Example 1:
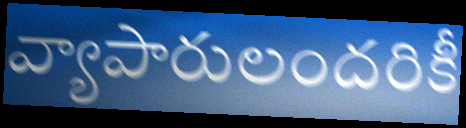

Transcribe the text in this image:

వ్యాపారులందరికీ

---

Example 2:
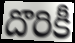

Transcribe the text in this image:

దొరికీ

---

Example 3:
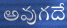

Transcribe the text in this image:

అవుగదే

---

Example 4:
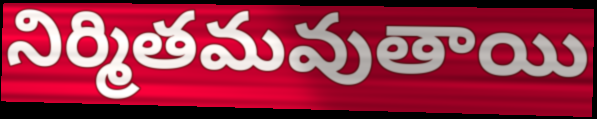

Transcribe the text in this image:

నిర్మితమవుతాయి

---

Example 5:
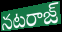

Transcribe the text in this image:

నటరాజ్